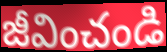
జీవించండి